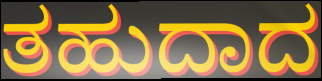
ತಹುದಾದ